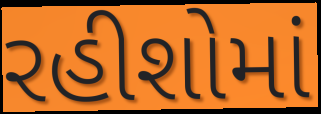
રહીશોમાં